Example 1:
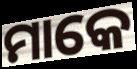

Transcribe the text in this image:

ମାକେ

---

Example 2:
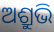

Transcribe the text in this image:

ଅଶ୍ରୁଭି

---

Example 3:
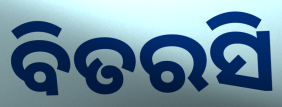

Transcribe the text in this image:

ବିତରସି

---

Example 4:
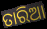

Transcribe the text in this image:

ତାରିଆ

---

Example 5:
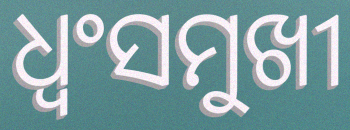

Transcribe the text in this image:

ଧ୍ୱଂସମୁଖୀ